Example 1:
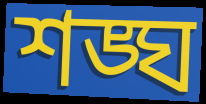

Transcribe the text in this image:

শঙ্ঘ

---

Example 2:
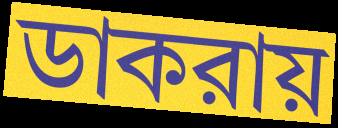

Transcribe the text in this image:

ডাকরায়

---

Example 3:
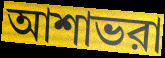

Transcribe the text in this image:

আশাভরা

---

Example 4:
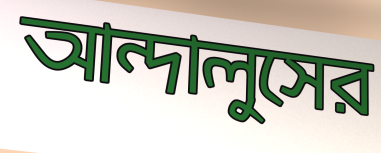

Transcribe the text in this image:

আন্দালুসের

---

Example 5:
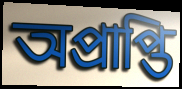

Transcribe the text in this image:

অপ্রাপ্তি